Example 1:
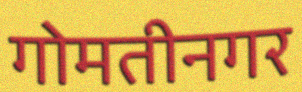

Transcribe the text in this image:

गोमतीनगर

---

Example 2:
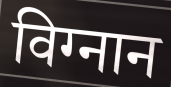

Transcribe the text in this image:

विग्नान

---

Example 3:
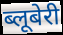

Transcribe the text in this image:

ब्लूबेरी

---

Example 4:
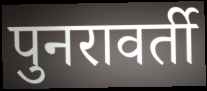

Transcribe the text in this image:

पुनरावर्ती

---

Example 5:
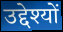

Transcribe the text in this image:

उद्देश्यों